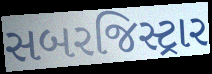
સબરજિસ્ટ્રાર